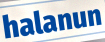
halanun